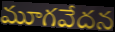
మూగవేదన